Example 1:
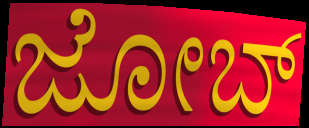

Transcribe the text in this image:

ಜೋಬ್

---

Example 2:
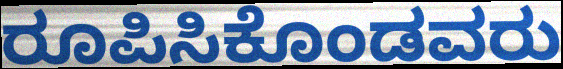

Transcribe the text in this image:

ರೂಪಿಸಿಕೊಂಡವರು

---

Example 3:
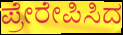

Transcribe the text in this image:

ಪ್ರೇರೇಪಿಸಿದ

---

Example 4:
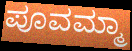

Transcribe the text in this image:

ಪೂವಮ್ಮಾ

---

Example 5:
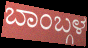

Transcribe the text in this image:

ಬಾಂಬ್ಗಳ